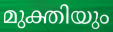
മുക്തിയും